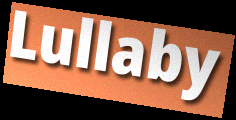
Lullaby